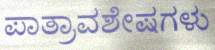
ಪಾತ್ರಾವಶೇಷಗಳು